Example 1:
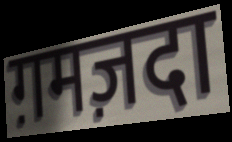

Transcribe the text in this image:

ग़मज़दा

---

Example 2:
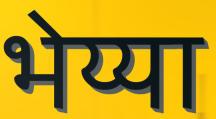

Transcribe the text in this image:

भेय्या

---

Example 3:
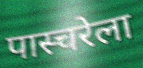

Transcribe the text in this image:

पास्चरेला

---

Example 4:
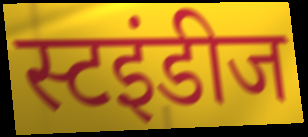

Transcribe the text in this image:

स्टइंडीज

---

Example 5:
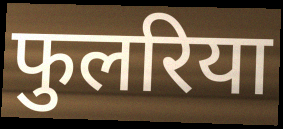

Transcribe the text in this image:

फुलरिया